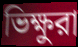
ভিক্ষুরা